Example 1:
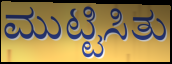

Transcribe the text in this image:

ಮುಟ್ಟಿಸಿತು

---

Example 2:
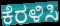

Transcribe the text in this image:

ಕೆರಳಿಸಿ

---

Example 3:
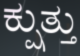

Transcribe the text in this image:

ಕ್ಷುತ್ತು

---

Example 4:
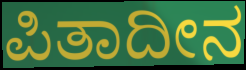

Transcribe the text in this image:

ಪಿತಾದೀನ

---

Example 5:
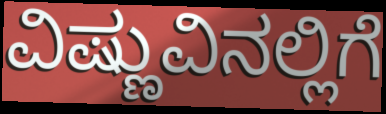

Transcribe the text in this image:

ವಿಷ್ಣುವಿನಲ್ಲಿಗೆ